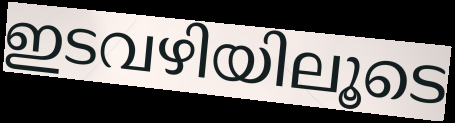
ഇടവഴിയിലൂടെ